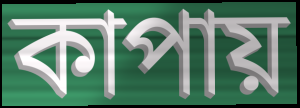
কাপায়